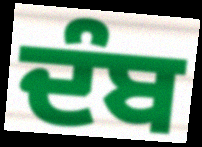
ਦੰਬ